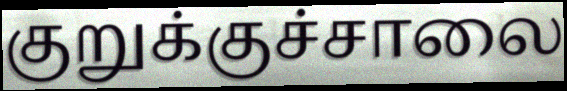
குறுக்குச்சாலை